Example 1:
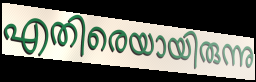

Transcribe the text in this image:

എതിരെയായിരുന്നു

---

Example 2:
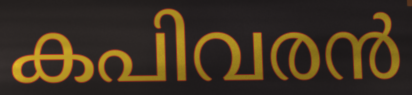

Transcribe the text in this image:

കപിവരൻ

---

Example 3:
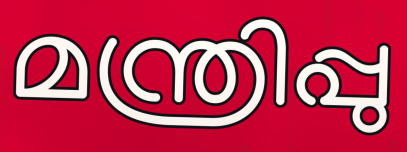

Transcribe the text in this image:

മന്ത്രിപ്പു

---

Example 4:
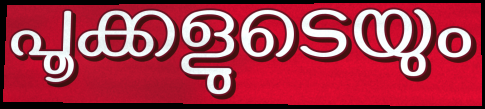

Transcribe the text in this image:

പൂക്കളുടെയും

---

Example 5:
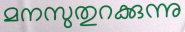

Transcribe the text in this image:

മനസുതുറക്കുന്നു